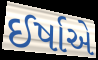
ઈર્ષાએ